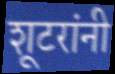
शूटरांनी